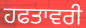
ਹਫਤਾਵਰੀ